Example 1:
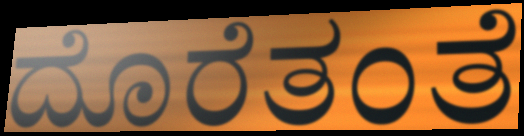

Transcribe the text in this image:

ದೊರೆತಂತೆ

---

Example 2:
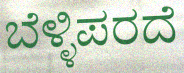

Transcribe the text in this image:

ಬೆಳ್ಳಿಪರದೆ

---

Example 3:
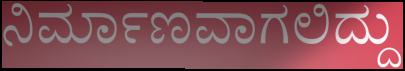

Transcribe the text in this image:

ನಿರ್ಮಾಣವಾಗಲಿದ್ದು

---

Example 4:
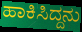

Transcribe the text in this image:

ಹಾಕಿಸಿದ್ದನು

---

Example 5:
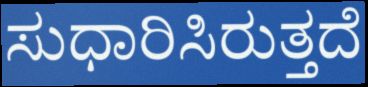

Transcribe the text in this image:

ಸುಧಾರಿಸಿರುತ್ತದೆ